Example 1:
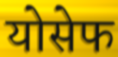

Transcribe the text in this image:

योसेफ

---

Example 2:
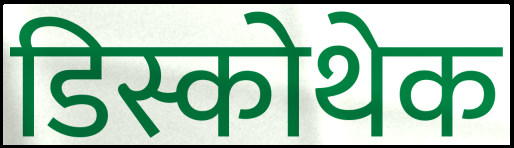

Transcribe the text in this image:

डिस्कोथेक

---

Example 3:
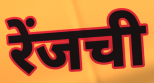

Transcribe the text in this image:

रेंजची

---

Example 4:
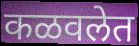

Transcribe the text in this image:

कळवलेत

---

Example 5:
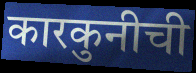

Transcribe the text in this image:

कारकुनीची